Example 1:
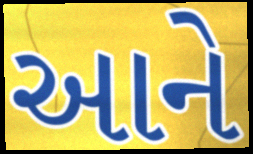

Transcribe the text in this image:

આને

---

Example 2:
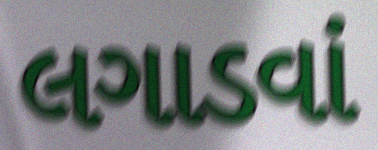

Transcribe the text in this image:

લગાડવાં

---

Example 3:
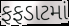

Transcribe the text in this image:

ફફડાટમાં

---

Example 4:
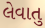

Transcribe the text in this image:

લેવાતુ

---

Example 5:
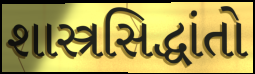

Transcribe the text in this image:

શાસ્ત્રસિદ્ધાંતો